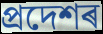
প্ৰদেশৰ